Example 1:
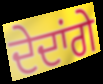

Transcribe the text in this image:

ਦੇਦਾਂਗੇ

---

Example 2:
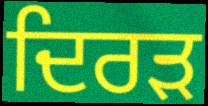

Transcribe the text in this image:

ਦਿਰੜ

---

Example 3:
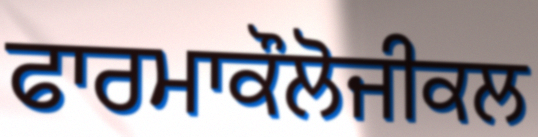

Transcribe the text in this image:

ਫਾਰਮਾਕੌਲੋਜੀਕਲ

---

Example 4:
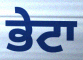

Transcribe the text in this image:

ਭੇਟਾ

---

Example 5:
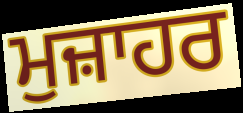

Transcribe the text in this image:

ਮੁਜ਼ਾਹਰ